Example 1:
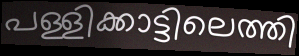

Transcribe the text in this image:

പള്ളിക്കാട്ടിലെത്തി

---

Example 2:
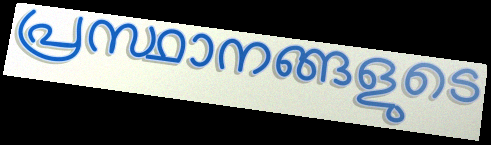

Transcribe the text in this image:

പ്രസ്ഥാനങ്ങളുടെ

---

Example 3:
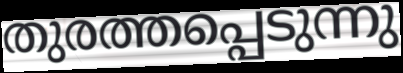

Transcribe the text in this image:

തുരത്തപ്പെടുന്നു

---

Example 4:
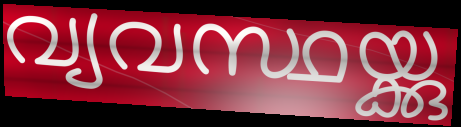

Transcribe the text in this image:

വ്യവസ്ഥയ്ക്കു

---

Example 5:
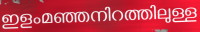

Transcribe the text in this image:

ഇളംമഞ്ഞനിറത്തിലുള്ള